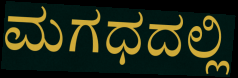
ಮಗಧದಲ್ಲಿ